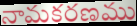
నామకరణము